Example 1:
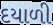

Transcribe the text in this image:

દયાળી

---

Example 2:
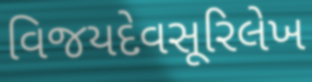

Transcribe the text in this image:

વિજયદેવસૂરિલેખ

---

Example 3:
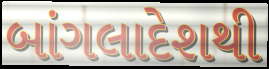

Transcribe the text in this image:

બાંગલાદેશથી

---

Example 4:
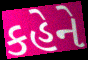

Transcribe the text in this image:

કહેને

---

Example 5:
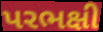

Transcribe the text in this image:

પરભક્ષી